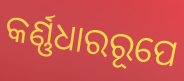
କର୍ଣ୍ଣଧାରରୂପେ